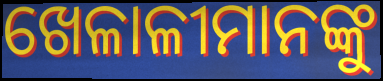
ଖେଳାଳୀମାନଙ୍କୁ